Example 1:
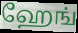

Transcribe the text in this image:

ஹேங்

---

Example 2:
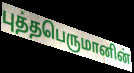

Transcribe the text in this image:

புத்தபெருமானின்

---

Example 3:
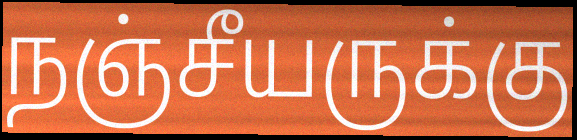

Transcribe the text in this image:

நஞ்சீயருக்கு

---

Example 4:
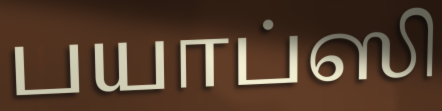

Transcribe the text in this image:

பயாப்ஸி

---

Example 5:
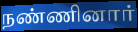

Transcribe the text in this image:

நண்ணினார்